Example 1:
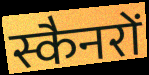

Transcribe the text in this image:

स्कैनरों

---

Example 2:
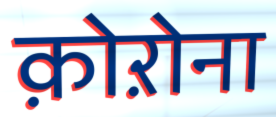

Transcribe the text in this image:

क़ोऱोना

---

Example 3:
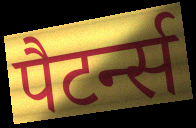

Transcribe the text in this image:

पैटर्न्स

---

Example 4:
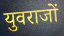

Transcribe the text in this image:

युवराजों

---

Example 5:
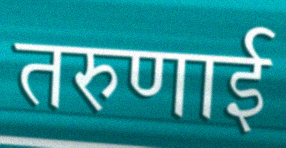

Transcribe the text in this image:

तरुणाई